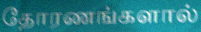
தோரணங்களால்